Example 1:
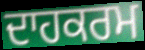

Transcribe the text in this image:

ਦਾਹਕਰਮ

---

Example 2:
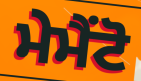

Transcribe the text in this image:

ਮੇਮੈਂਟੋ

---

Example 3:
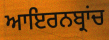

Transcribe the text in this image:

ਆਇਰਨਬ੍ਰਾਂਚ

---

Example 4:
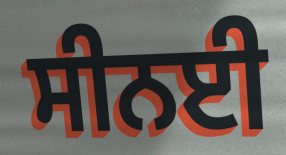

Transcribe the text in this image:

ਸੀਨਈ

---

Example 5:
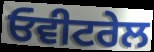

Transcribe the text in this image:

ਓਵੀਟਰੇਲ